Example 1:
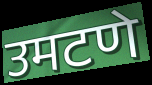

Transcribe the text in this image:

उमटणे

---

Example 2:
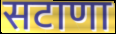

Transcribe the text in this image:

सटाणा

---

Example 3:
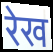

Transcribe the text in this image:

रेख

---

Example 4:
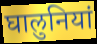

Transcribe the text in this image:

घालुनियां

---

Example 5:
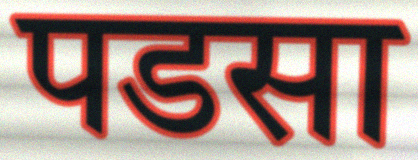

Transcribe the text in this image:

पडसा